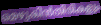
മെഴുകിൻതിരികളും